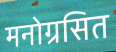
मनोग्रसित